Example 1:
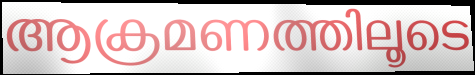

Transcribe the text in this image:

ആക്രമണത്തിലൂടെ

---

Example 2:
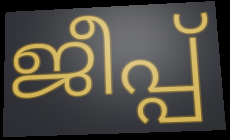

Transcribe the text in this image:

ജീപ്പ്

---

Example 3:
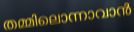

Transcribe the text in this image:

തമ്മിലൊന്നാവാൻ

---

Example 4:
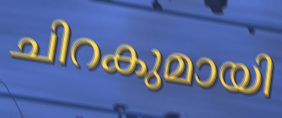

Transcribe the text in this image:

ചിറകുമായി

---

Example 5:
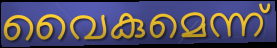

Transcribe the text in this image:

വൈകുമെന്ന്